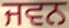
ਜਵਨ